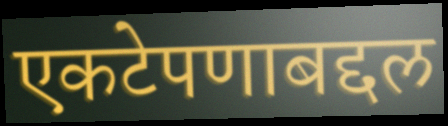
एकटेपणाबद्दल